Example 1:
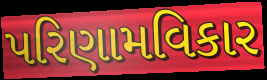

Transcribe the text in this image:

પરિણામવિકાર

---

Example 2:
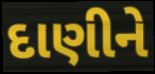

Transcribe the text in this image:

દાણીને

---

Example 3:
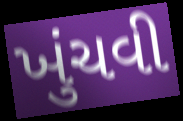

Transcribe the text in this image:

ખુંચવી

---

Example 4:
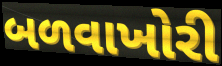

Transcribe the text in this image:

બળવાખોરી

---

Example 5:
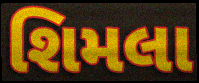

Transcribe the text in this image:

શિમલા